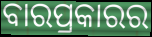
ବାରପ୍ରକାରର